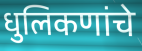
धुलिकणांचे